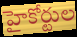
హైకోర్టుల